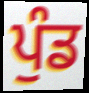
ਪੁੰਡ